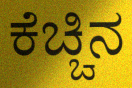
ಕೆಚ್ಚಿನ